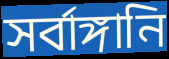
সর্বাঙ্গানি